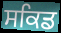
ਸਕਿਡ